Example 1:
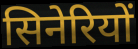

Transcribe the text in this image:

सिनेरियों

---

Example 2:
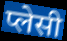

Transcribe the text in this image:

प्लेसी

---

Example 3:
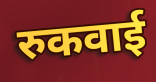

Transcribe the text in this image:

रुकवाई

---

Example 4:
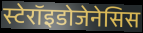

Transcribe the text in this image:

स्टेरॉइडोजेनेसिस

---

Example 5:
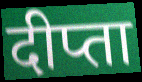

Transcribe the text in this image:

दीप्ता